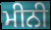
ਮੀਨੀ